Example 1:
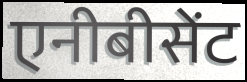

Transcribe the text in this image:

एनीबीसेंट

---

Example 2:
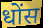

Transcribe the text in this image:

धोंस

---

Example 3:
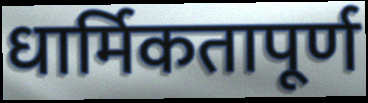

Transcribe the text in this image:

धार्मिकतापूर्ण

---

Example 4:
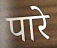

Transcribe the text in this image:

पारे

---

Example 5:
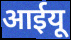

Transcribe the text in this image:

आईयू